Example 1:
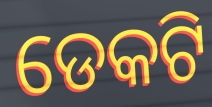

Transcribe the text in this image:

ଡେକଟି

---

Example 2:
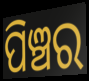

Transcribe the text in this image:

ପିଞ୍ଚର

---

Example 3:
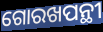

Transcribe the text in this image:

ଗୋରଖପନ୍ଥୀ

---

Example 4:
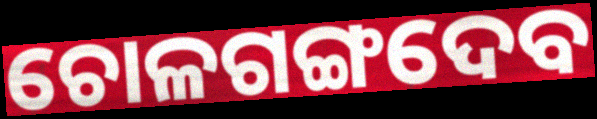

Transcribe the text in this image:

ଚୋଳଗଙ୍ଗଦେବ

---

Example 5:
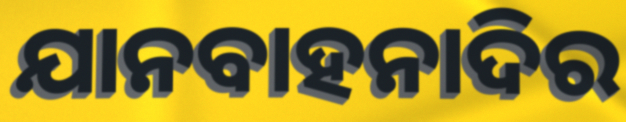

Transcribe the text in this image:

ଯାନବାହନାଦିର